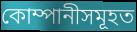
কোম্পানীসমূহত